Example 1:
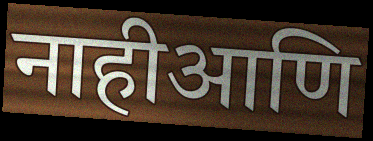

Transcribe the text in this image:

नाहीआणि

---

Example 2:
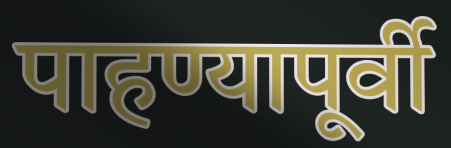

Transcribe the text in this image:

पाहण्यापूर्वी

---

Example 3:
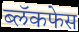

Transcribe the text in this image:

ब्लॅकफेस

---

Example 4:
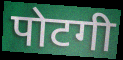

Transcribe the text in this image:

पोटगी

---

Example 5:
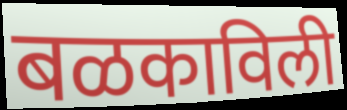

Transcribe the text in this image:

बळकाविली